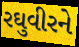
રઘુવીરને